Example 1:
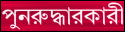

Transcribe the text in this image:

পুনরুদ্ধারকারী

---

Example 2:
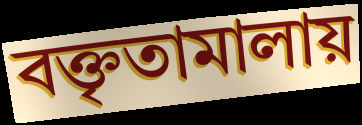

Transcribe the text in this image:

বক্তৃতামালায়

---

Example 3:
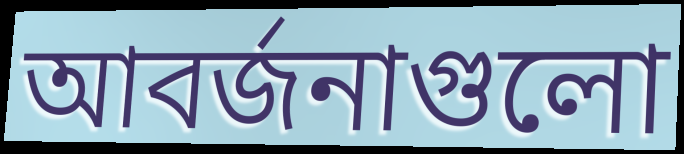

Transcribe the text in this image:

আবর্জনাগুলো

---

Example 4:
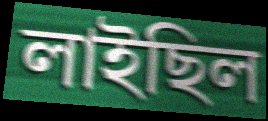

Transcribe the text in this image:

লাইছিল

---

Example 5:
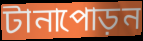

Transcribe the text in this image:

টানাপোড়ন